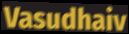
Vasudhaiv